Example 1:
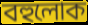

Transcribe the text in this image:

বহুলোক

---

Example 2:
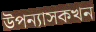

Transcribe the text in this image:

উপন্যাসকখন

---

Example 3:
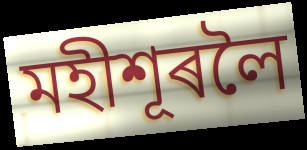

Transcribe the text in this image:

মহীশূৰলৈ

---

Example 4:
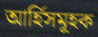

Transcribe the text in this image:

আৰ্হিসমূহক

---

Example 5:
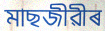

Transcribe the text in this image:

মাছজীৱীৰ